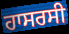
ਹਾਸਰਸੀ